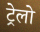
ट्रेलो